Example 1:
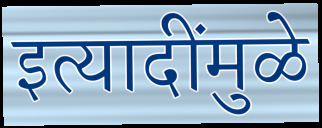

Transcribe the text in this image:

इत्यादींमुळे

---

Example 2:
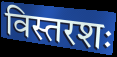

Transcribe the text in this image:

विस्तरशः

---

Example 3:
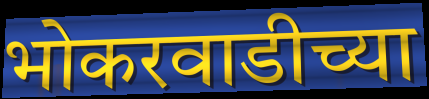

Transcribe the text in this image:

भोकरवाडीच्या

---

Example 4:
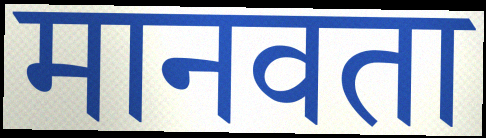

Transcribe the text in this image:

मानवता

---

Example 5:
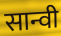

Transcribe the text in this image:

सान्वी